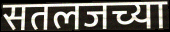
सतलजच्या